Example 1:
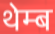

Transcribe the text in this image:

थेम्ब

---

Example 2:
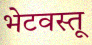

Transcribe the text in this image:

भेटवस्तू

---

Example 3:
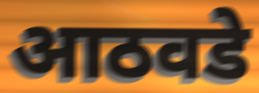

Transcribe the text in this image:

आठवडे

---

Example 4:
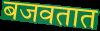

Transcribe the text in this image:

बजवतात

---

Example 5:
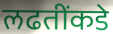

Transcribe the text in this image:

लढतींकडे